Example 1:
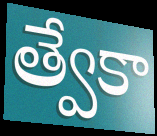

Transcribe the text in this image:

త్వేకా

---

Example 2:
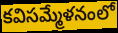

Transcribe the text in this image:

కవిసమ్మేళనంలో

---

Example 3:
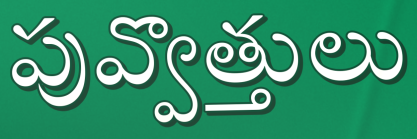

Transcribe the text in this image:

పువ్వొత్తులు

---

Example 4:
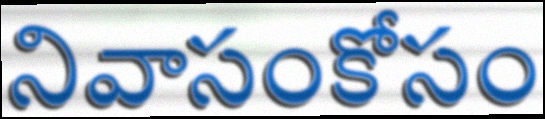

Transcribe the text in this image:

నివాసంకోసం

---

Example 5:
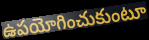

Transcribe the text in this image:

ఉపయోగించుకుంటూ